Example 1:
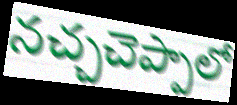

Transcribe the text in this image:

నచ్చచెప్పాలో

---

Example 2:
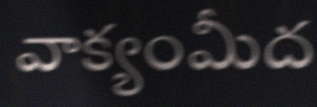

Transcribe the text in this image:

వాక్యంమీద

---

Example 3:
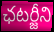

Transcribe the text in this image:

ఛటర్జీని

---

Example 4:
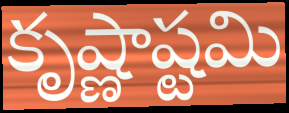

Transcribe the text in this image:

కృష్ణాష్టమి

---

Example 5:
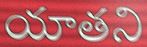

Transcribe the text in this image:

యాతని